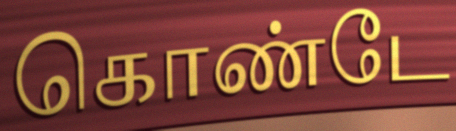
கொண்டே